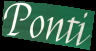
Ponti